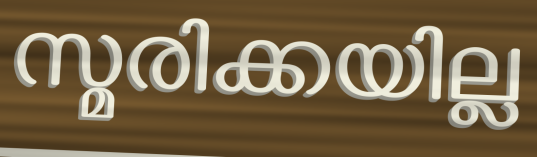
സ്മരിക്കയില്ല